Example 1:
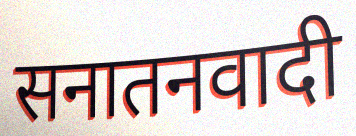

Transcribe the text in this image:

सनातनवादी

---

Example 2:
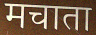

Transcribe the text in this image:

मचाता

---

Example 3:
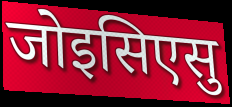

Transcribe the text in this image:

जोइसिएसु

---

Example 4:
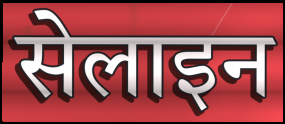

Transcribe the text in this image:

सेलाइन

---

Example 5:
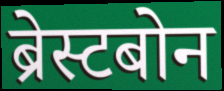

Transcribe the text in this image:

ब्रेस्टबोन